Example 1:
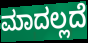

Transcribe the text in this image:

ಮಾದಲ್ಲದೆ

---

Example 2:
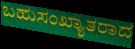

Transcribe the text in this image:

ಬಹುಸಂಖ್ಯಾತರಾದ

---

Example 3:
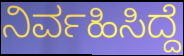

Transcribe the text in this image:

ನಿರ್ವಹಿಸಿದ್ದೆ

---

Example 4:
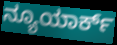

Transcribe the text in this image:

ನ್ಯೂಯಾರ್ಕ್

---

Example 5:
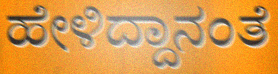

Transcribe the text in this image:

ಹೇಳಿದ್ದಾನಂತೆ